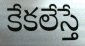
కేకలేస్తే